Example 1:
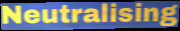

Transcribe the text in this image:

Neutralising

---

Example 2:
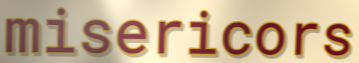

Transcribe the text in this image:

misericors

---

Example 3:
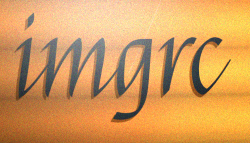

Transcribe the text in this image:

imgrc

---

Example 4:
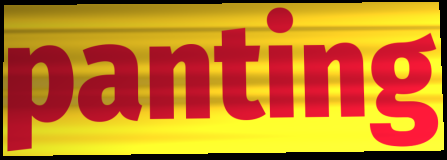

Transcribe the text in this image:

panting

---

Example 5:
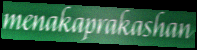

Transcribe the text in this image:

menakaprakashan